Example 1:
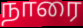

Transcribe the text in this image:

நாரை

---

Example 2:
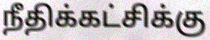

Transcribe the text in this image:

நீதிக்கட்சிக்கு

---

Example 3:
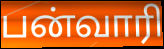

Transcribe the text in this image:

பன்வாரி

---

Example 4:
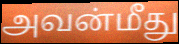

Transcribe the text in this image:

அவன்மீது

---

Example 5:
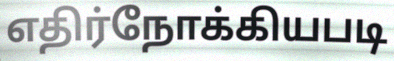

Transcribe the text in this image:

எதிர்நோக்கியபடி